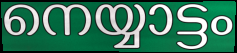
നെയ്യാട്ടം